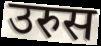
उरुस